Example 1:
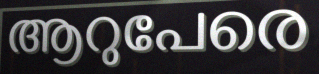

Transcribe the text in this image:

ആറുപേരെ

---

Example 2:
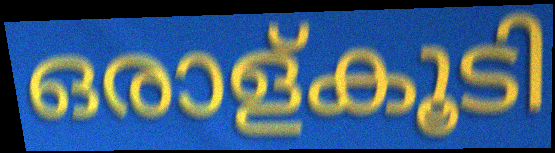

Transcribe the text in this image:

ഒരാള്കൂടി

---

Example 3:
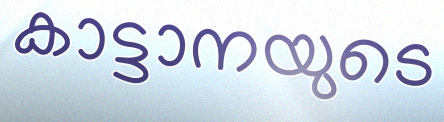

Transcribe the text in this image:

കാട്ടാനയുടെ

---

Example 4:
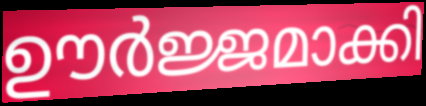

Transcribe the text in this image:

ഊർജ്ജമാക്കി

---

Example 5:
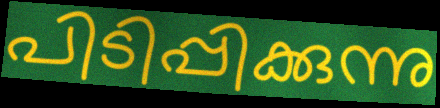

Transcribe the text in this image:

പിടിപ്പിക്കുന്നു